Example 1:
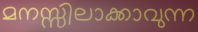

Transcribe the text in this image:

മനസ്സിലാക്കാവുന്ന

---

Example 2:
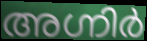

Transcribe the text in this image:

അഗ്നിർ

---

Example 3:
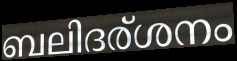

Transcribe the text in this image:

ബലിദര്ശനം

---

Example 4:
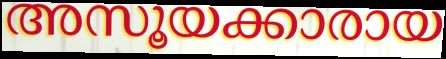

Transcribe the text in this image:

അസൂയക്കാരായ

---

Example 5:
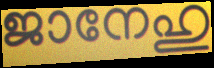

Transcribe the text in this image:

ജാനേഹു